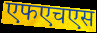
एफएचएस